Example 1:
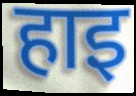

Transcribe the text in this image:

हाइ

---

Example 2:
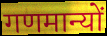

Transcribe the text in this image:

गणमान्यों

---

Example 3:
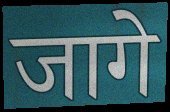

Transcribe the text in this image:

जागे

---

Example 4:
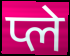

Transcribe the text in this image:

प्ले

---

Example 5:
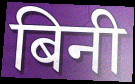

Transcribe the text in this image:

बिनी